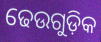
ଢେଉଗୁଡ଼ିକ